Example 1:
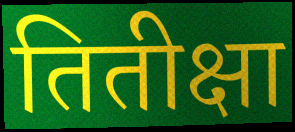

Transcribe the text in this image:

तितीक्षा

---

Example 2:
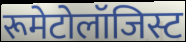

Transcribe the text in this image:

रूमेटोलॉजिस्ट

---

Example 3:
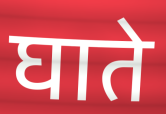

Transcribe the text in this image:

घाते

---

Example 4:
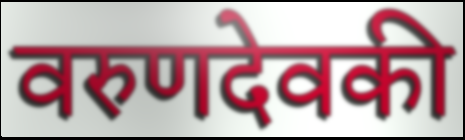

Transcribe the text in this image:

वरुणदेवकी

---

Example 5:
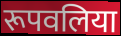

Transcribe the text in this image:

रूपवलिया